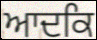
ਆਦਕਿ